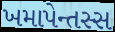
ખમાપેન્તસ્સ